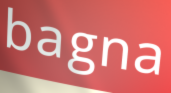
bagna